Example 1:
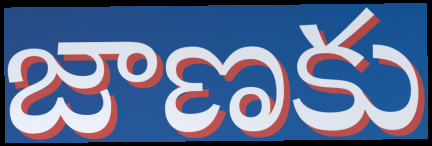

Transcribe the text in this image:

జాణకు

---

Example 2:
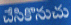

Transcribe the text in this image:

చేసికొనుచు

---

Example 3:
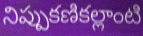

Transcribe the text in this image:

నిప్పుకణికల్లాంటి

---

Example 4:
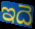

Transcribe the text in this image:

ఇదె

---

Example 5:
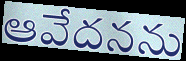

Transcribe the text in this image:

ఆవేదనను